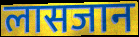
लासजान